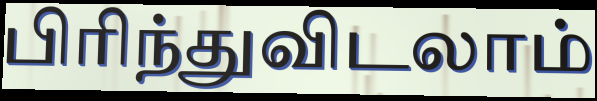
பிரிந்துவிடலாம்